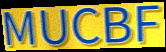
MUCBF